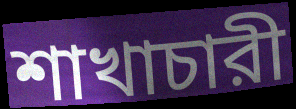
শাখাচারী